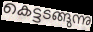
കെട്ടടങ്ങുന്നു